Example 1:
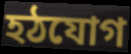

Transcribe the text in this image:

হঠযোগ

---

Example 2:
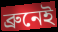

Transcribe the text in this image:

ব্রুনেই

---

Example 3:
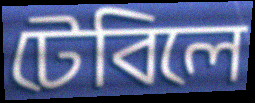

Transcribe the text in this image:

টেবিলে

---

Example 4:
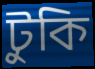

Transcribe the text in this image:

টুকি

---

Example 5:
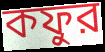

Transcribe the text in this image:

কফুর